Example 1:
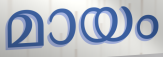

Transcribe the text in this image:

മായം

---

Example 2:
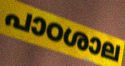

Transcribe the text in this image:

പാഠശാല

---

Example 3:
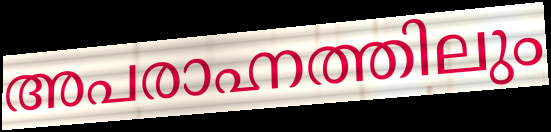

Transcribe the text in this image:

അപരാഹ്നത്തിലും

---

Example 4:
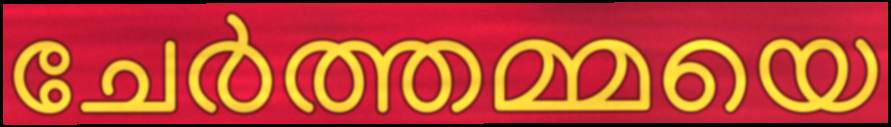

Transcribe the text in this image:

ചേർത്തമ്മയെ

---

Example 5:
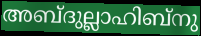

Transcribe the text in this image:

അബ്ദുല്ലാഹിബ്നു